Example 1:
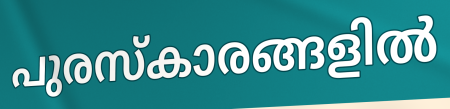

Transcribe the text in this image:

പുരസ്കാരങ്ങളിൽ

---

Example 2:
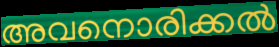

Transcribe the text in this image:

അവനൊരിക്കൽ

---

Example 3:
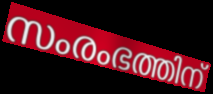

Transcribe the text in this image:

സംരംഭത്തിന്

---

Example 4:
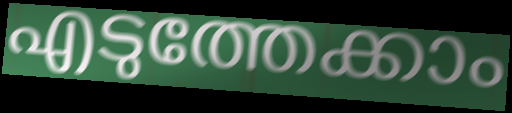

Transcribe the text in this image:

എടുത്തേക്കാം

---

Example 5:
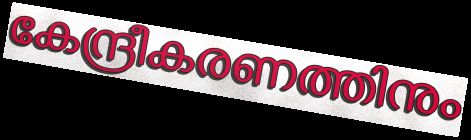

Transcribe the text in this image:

കേന്ദ്രീകരണത്തിനും